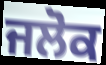
ਜਲੋਕ